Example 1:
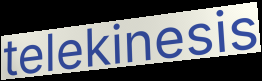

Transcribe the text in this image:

telekinesis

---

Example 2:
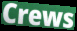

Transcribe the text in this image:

Crews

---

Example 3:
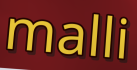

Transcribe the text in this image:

malli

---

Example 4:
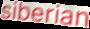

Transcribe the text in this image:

siberian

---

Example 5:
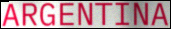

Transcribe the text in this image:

ARGENTINA